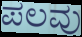
ಪಲವು